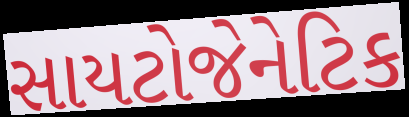
સાયટોજેનેટિક